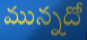
మున్నదో